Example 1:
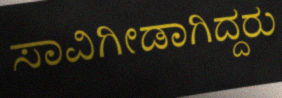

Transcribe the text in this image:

ಸಾವಿಗೀಡಾಗಿದ್ದರು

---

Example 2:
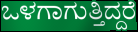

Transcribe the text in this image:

ಒಳಗಾಗುತ್ತಿದ್ದರೆ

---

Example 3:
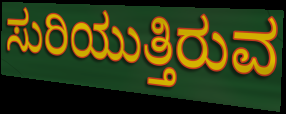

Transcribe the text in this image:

ಸುರಿಯುತ್ತಿರುವ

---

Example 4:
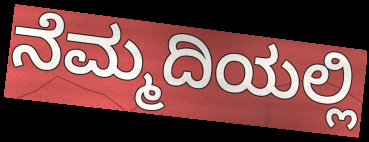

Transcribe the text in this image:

ನೆಮ್ಮದಿಯಲ್ಲಿ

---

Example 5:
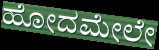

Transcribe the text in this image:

ಹೋದಮೇಲೇ